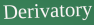
Derivatory